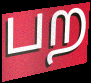
பற